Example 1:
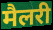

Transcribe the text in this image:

मैलरी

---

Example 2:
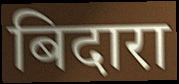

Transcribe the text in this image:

बिदारा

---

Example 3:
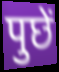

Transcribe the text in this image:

पुछें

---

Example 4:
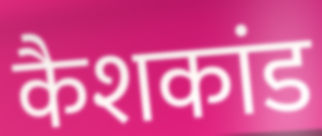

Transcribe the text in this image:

कैशकांड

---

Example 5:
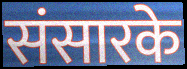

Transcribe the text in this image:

संसारके